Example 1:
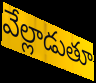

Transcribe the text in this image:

వేల్లాడుతూ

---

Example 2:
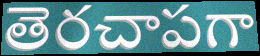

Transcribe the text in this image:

తెరచాపగా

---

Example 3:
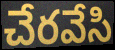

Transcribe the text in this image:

చేరవేసి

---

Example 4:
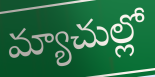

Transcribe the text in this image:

మ్యాచుల్లో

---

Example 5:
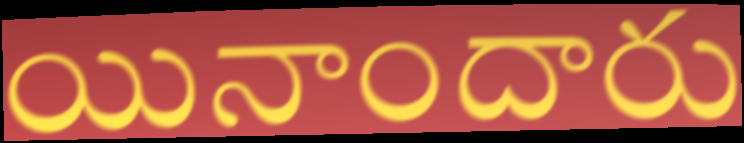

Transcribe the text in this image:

యినాందారు